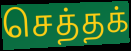
செத்தக்